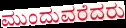
ಮುಂದುವರೆದರು